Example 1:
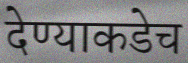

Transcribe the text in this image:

देण्याकडेच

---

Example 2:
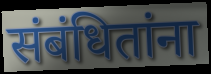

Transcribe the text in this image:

संबंधितांना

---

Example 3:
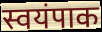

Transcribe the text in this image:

स्वयंपाक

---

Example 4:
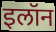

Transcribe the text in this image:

इलॉन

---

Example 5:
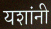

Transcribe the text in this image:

यशांनी